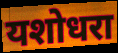
यशोधरा